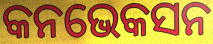
କନଭେକସନ